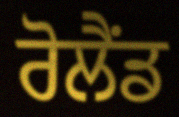
ਰੋਲੈਂਡ